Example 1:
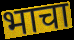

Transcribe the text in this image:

भाचा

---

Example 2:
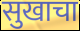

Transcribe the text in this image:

सुखाचा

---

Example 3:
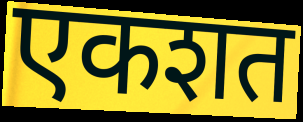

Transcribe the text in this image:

एकशत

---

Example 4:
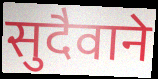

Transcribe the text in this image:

सुदैवाने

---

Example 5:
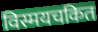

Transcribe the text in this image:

विस्मयचकित